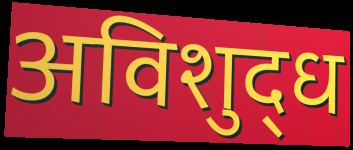
अविशुद्ध